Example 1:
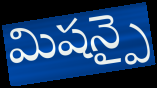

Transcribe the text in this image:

మిషన్పై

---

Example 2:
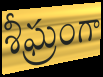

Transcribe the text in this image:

శీఘ్రంగా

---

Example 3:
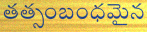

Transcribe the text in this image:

తత్సంబంధమైన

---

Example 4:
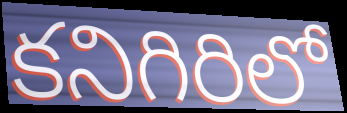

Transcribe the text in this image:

కనిగిరిలో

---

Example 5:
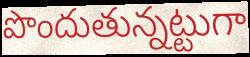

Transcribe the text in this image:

పొందుతున్నట్టుగా